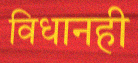
विधानही